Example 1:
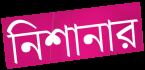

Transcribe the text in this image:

নিশানার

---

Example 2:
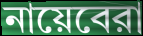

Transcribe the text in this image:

নায়েবেরা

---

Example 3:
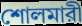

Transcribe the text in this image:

শোলমারী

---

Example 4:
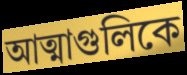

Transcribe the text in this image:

আত্মাগুলিকে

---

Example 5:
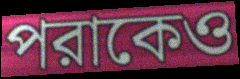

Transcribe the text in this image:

পরাকেও